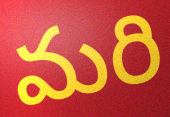
మరి